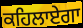
ਕਹਿਲਾਏਗਾ